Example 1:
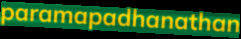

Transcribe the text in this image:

paramapadhanathan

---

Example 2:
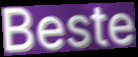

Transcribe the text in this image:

Beste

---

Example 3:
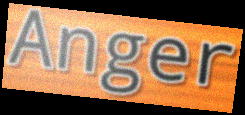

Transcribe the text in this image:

Anger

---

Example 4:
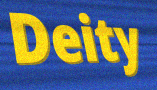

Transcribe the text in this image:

Deity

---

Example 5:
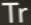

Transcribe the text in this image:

Tr